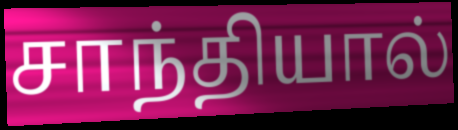
சாந்தியால்